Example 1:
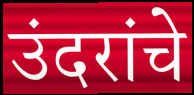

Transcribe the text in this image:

उंदरांचे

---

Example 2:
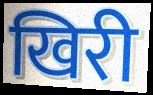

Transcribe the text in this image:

खिरी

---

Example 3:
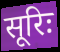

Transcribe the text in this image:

सूरिः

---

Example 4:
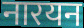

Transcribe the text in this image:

नारयन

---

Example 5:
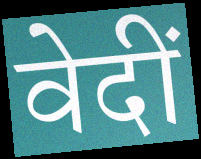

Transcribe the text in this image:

वेदीं